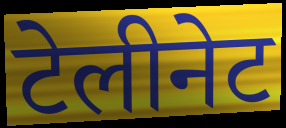
टेलीनेट